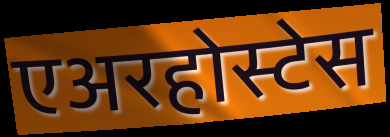
एअरहोस्टेस